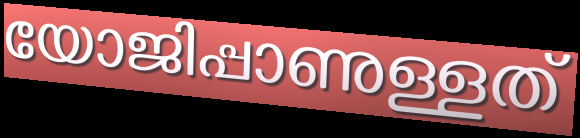
യോജിപ്പാണുള്ളത്